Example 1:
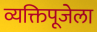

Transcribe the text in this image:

व्यक्तिपूजेला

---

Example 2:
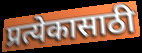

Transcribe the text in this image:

प्रत्येकासाठी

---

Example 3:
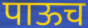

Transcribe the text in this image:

पाऊच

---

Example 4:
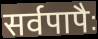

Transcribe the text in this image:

सर्वपापैः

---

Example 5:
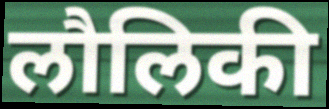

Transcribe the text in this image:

लौलिकी